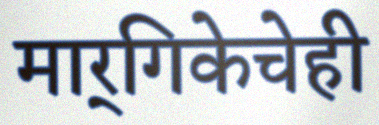
मार्गिकेचेही